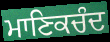
ਮਾਣਿਕਚੰਦ